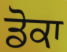
ਡੋਕਾ